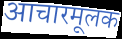
आचारमूलक